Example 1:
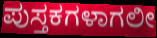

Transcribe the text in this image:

ಪುಸ್ತಕಗಳಾಗಲೀ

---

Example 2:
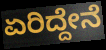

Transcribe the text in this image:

ಏರಿದ್ದೇನೆ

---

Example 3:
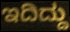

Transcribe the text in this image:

ಇದಿದ್ದು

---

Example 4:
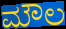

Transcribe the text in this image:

ಮೌಲ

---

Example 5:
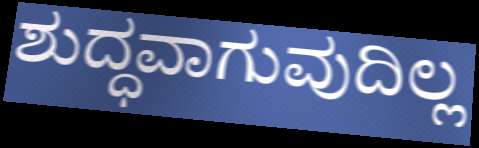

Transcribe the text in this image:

ಶುದ್ಧವಾಗುವುದಿಲ್ಲ